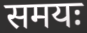
समयः